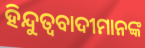
ହିନ୍ଦୁତ୍ଵବାଦୀମାନଙ୍କ